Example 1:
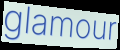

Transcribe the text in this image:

glamour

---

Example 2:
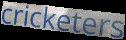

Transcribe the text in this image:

cricketers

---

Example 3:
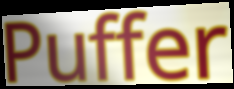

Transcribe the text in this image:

Puffer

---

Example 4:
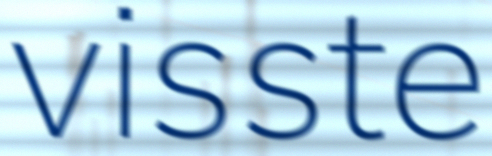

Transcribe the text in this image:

visste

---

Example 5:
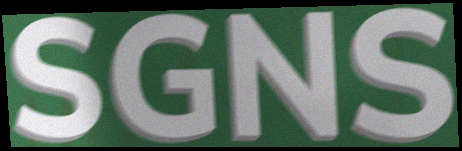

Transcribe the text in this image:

SGNS